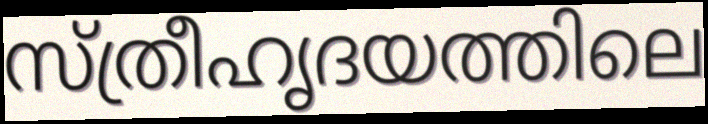
സ്ത്രീഹൃദയത്തിലെ